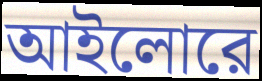
আইলোরে